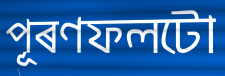
পূৰণফলটো